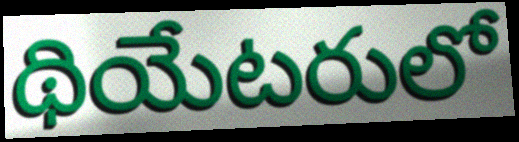
థియేటరులో